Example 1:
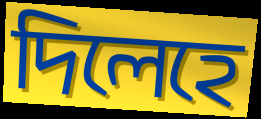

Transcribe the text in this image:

দিলেহে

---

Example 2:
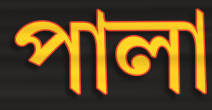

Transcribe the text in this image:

পালা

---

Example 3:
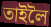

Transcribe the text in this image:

তাইলৈ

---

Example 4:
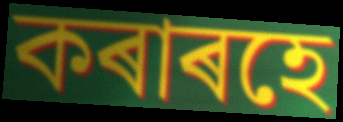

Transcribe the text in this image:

কৰাৰহে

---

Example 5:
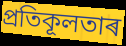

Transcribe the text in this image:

প্ৰতিকূলতাৰ